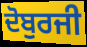
ਦੋਬੁਰਜੀ